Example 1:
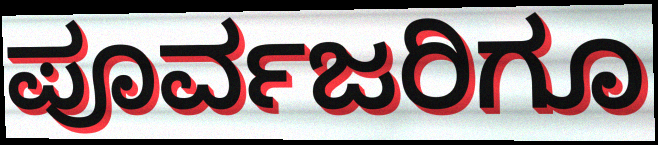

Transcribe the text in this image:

ಪೂರ್ವಜರಿಗೂ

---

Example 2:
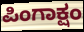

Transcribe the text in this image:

ಪಿಂಗಾಕ್ಷಂ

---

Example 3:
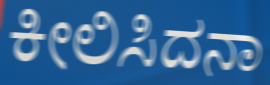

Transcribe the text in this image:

ಕೀಲಿಸಿದನಾ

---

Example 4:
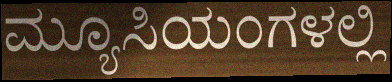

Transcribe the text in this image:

ಮ್ಯೂಸಿಯಂಗಳಲ್ಲಿ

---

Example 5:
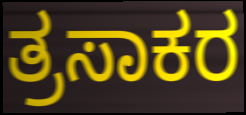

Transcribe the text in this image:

ತ್ರಸಾಕರ